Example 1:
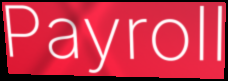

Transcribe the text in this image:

Payroll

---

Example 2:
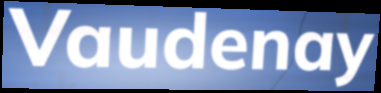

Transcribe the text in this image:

Vaudenay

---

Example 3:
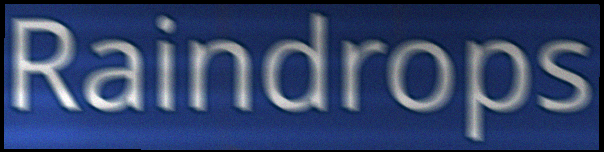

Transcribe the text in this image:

Raindrops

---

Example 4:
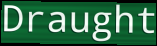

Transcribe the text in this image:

Draught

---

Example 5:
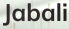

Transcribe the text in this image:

Jabali